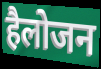
हैलोजन